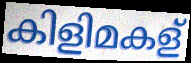
കിളിമകള്